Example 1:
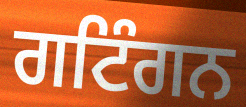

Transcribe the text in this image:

ਗਟਿੰਗਨ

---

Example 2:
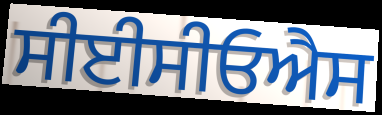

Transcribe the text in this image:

ਸੀਈਸੀਓਐਸ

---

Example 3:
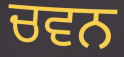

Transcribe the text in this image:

ਚਵਨ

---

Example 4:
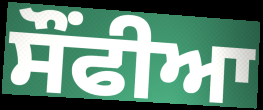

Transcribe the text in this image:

ਸੌਂਫੀਆ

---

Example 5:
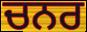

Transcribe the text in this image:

ਚਨਰ